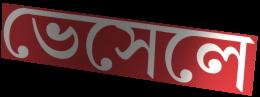
ভেসেলে